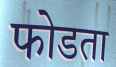
फोडता